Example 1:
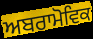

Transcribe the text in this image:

ਅਬਰਾਮੋਵਿਕ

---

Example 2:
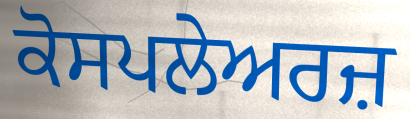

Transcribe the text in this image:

ਕੋਸਪਲੇਅਰਜ਼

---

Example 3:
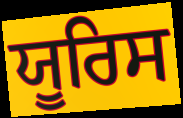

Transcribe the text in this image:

ਯੂਰਿਸ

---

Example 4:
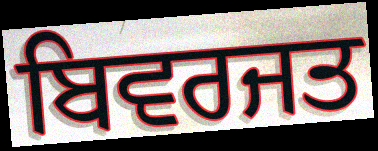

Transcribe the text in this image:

ਬਿਵਰਜਤ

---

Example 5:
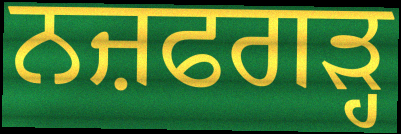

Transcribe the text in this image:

ਨਜ਼ਫਗੜ੍ਹ